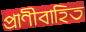
প্রাণীবাহিত